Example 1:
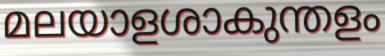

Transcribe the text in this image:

മലയാളശാകുന്തളം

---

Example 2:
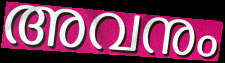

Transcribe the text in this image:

അവനും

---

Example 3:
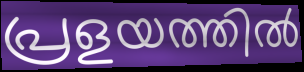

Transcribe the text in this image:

പ്രളയത്തിൽ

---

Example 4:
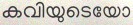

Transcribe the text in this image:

കവിയുടെയോ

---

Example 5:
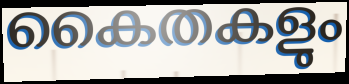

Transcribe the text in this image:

കൈതകളും